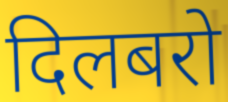
दिलबरो